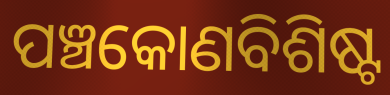
ପଞ୍ଚକୋଣବିଶିଷ୍ଟ